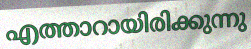
എത്താറായിരിക്കുന്നു